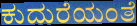
ಕುದುರೆಯಂತೆ